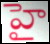
హై